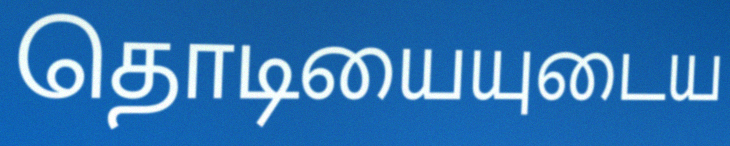
தொடியையுடைய